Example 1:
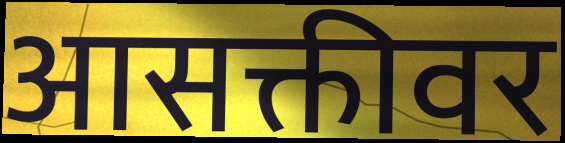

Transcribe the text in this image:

आसक्तीवर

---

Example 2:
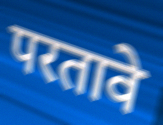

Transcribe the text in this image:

परतावे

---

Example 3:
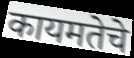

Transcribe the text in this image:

कायमतेचे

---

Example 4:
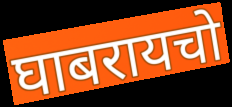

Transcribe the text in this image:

घाबरायचो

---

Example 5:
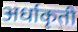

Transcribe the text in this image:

अर्धाकृती